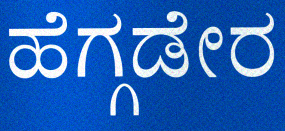
ಹೆಗ್ಗಡೇರ